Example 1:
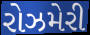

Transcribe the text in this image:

રોઝમેરી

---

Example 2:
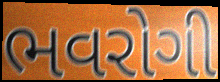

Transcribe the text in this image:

ભવરોગી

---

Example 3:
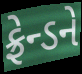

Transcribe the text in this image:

ફ્રેન્ડને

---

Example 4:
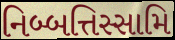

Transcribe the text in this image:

નિબ્બત્તિસ્સામિ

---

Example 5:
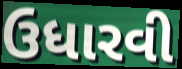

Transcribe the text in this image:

ઉધારવી